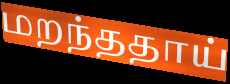
மறந்ததாய்